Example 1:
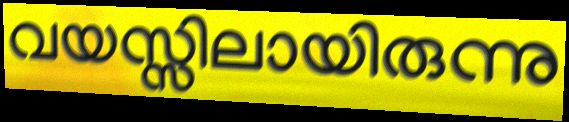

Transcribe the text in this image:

വയസ്സിലായിരുന്നു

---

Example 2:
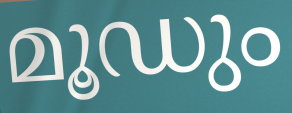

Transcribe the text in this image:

മൂഡും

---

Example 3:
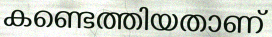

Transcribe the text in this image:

കണ്ടെത്തിയതാണ്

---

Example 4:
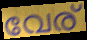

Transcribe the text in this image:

വേര്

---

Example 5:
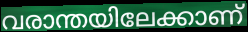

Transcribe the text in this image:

വരാന്തയിലേക്കാണ്